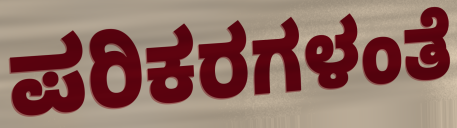
ಪರಿಕರಗಳಂತೆ